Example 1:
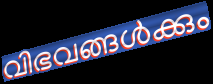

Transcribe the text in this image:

വിഭവങ്ങൾക്കും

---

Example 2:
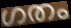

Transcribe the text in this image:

ഗതം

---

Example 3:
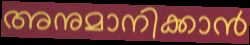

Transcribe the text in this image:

അനുമാനിക്കാൻ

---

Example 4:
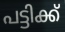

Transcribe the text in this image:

പട്ടിക്ക്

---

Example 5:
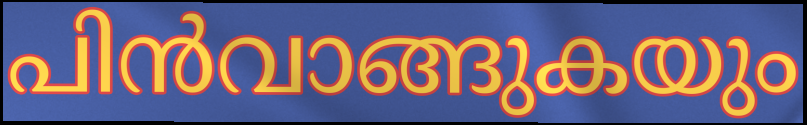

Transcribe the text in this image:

പിൻവാങ്ങുകയും